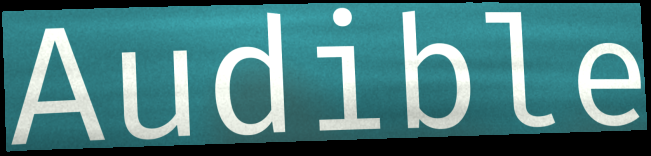
Audible